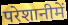
परेशानीमें